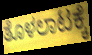
ತೊಳಲಾಟಕ್ಕೆ